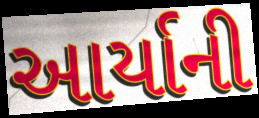
આર્યાની